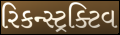
રિકન્સ્ટ્રક્ટિવ